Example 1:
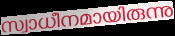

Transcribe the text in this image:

സ്വാധീനമായിരുന്നു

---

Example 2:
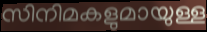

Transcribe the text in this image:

സിനിമകളുമായുള്ള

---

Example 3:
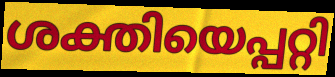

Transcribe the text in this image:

ശക്തിയെപ്പറ്റി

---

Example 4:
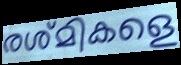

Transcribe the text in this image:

രശ്മികളെ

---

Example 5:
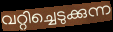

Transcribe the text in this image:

വറ്റിച്ചെടുക്കുന്ന